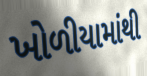
ખોળીયામાંથી